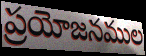
ప్రయోజనముల